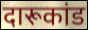
दारूकांड